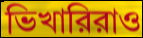
ভিখারিরাও